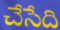
చేసేది